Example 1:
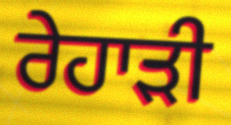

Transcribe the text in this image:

ਰੇਹਾੜੀ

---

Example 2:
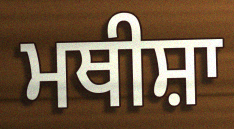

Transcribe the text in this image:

ਮਥੀਸ਼ਾ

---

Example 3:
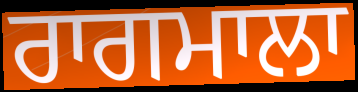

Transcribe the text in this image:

ਰਾਗਮਾਲਾ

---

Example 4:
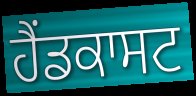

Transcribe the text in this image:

ਹੈਂਡਕਾਸਟ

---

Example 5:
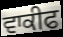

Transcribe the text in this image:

ਵਾਕੀਫ